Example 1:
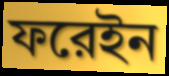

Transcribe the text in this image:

ফরেইন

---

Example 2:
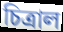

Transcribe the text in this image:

চিত্রাল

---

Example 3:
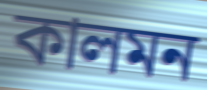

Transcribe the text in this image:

কালমন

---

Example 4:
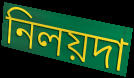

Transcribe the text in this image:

নিলয়দা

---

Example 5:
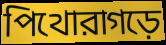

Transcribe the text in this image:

পিথোরাগড়ে